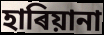
হাৰিয়ানা